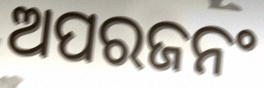
ଅପରଜନଂ